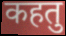
कहतु